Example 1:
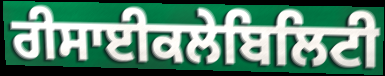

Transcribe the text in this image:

ਰੀਸਾਈਕਲੇਬਿਲਿਟੀ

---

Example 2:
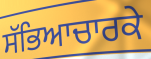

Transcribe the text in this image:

ਸੱਭਿਆਚਾਰਕੇ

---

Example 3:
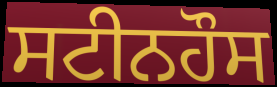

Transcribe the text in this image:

ਸਟੀਨਹੌਸ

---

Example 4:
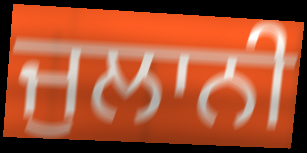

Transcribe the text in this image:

ਜੁਲਾਨੀ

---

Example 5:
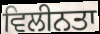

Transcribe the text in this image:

ਵਿਲੀਨਤਾ